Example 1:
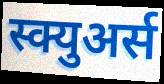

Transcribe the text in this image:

स्क्युअर्स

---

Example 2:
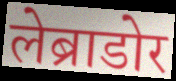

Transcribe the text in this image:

लेब्राडोर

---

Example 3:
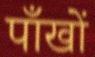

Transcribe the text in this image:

पाँखों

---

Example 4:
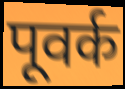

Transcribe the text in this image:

पूवर्क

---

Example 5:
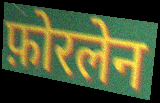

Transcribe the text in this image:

फ़ोरलेन